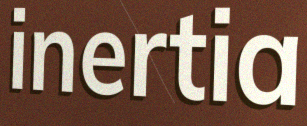
inertia